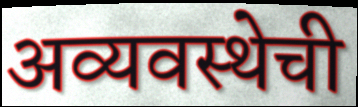
अव्यवस्थेची